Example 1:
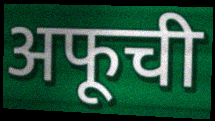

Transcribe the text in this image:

अफूची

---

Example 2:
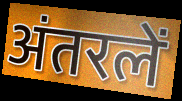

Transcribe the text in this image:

अंतरलें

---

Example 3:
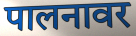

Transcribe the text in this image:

पालनावर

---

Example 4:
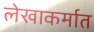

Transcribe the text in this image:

लेखाकर्मात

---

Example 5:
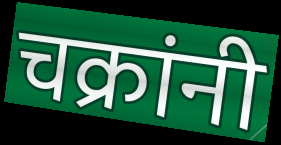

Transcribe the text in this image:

चक्रांनी